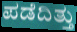
ಪಡೆದಿತ್ತು